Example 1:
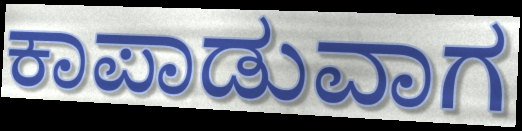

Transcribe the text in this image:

ಕಾಪಾಡುವಾಗ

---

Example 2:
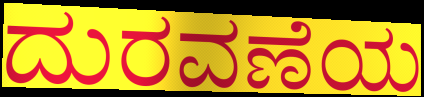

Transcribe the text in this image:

ದುರವಣೆಯ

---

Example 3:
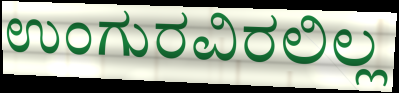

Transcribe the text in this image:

ಉಂಗುರವಿರಲಿಲ್ಲ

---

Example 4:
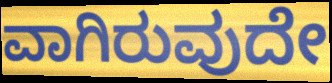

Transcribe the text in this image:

ವಾಗಿರುವುದೇ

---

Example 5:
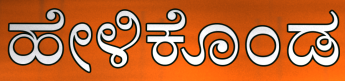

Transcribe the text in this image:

ಹೇಳಿಕೊಂಡ